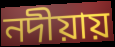
নদীয়ায়